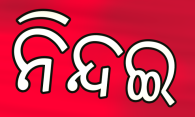
ନିନ୍ଦଇ